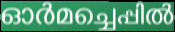
ഓർമച്ചെപ്പിൽ